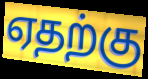
ஏதற்கு